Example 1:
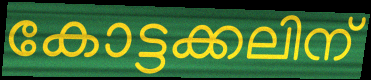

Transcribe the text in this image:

കോട്ടക്കലിന്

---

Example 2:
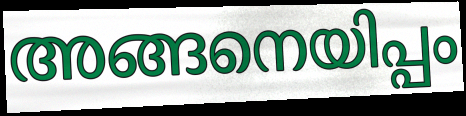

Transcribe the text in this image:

അങ്ങനെയിപ്പം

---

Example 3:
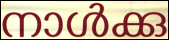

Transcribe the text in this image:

നാൾക്കു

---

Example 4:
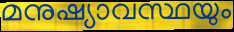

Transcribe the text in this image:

മനുഷ്യാവസ്ഥയും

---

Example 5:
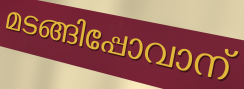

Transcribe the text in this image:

മടങ്ങിപ്പോവാന്